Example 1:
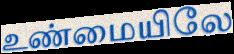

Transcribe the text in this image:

உண்மையிலே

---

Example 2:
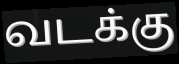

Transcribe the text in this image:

வடக்கு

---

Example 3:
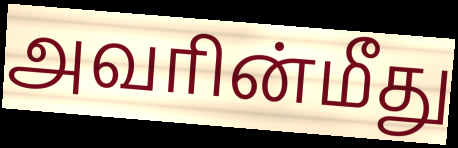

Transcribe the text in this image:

அவரின்மீது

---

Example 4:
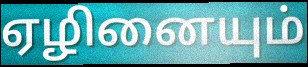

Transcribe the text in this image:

ஏழினையும்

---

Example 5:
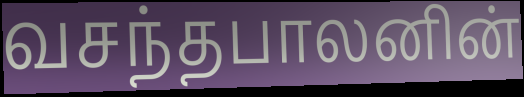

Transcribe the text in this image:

வசந்தபாலனின்